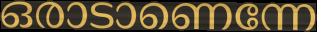
ഒരാടാണെന്നേ